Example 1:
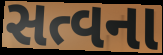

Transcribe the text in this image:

સત્વના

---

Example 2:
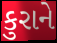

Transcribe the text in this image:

કુરાને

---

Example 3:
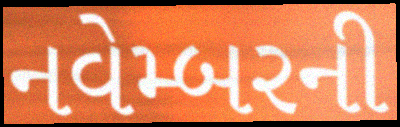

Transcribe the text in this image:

નવેમ્બરની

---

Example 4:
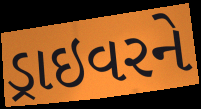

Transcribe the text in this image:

ડ્રાઇવરને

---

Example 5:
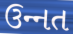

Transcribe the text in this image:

ઉન્‍નત